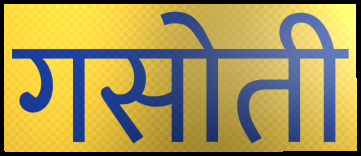
गसोती